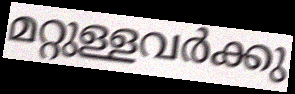
മറ്റുള്ളവർക്കു